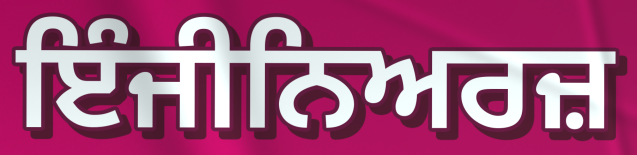
ਇੰਜੀਨਿਅਰਜ਼